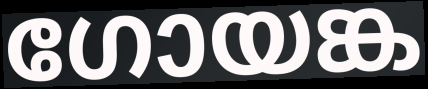
ഗോയങ്ക